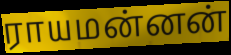
ராயமன்னன்